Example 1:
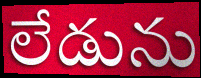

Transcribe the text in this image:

లేడును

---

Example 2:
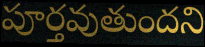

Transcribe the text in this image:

పూర్తవుతుందని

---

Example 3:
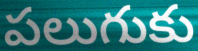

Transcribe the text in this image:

పలుగుకు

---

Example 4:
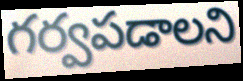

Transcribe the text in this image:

గర్వపడాలని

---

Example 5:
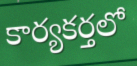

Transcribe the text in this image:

కార్యకర్తలో